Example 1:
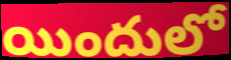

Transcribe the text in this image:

యిందులో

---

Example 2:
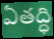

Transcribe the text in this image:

ఏతద్ధి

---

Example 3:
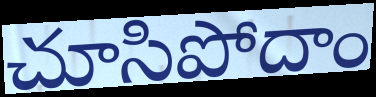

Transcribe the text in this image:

చూసిపోదాం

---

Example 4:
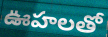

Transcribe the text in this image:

ఊహలతో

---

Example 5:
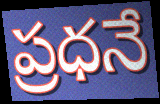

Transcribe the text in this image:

ప్రధనే